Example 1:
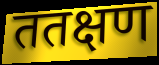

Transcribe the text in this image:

ततक्षण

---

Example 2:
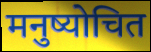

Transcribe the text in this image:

मनुष्योचित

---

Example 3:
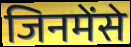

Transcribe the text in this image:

जिनमेंसे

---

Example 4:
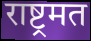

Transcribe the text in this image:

राष्ट्रमत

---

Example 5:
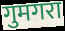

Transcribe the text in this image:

गुमगरा